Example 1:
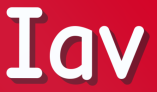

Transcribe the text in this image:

Iav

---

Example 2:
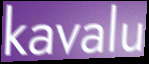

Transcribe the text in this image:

kavalu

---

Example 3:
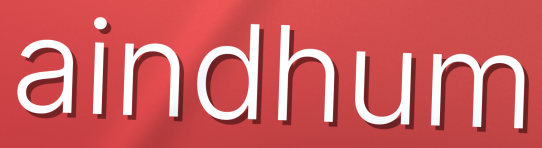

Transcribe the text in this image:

aindhum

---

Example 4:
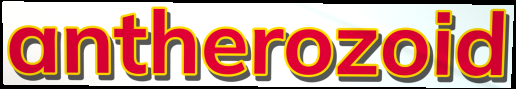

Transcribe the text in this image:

antherozoid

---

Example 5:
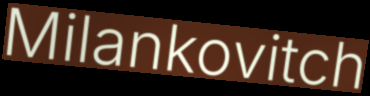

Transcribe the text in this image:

Milankovitch